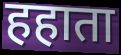
हहाता